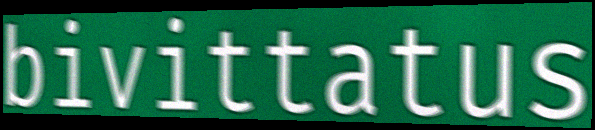
bivittatus